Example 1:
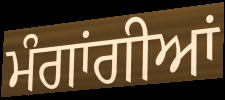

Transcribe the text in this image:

ਮੰਗਾਂਗੀਆਂ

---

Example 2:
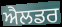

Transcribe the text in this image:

ਐਲਡਰ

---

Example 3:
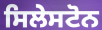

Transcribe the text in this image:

ਸਿਲੇਸਟੋਨ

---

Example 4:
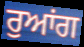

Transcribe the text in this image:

ਰੁਆਂਗ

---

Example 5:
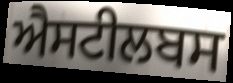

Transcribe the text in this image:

ਐਸਟੀਲਬਸ